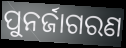
ପୁନର୍ଜାଗରଣ